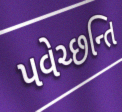
પવેચ્છન્તિ